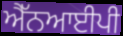
ਐੱਨਆਈਪੀ